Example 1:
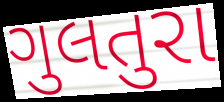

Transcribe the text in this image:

ગુલતુરા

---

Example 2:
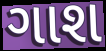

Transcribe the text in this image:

ગાશ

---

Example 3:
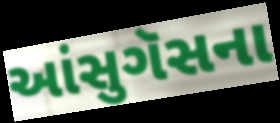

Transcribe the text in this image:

આંસુગૅસના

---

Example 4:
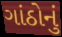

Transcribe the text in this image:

ગાંઠોનું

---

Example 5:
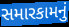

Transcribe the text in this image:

સમારકામનું